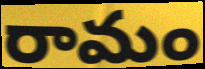
రామం